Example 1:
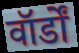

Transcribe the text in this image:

वॉर्डों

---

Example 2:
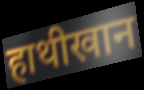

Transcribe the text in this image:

हाथीखान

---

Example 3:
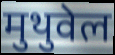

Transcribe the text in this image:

मुथुवेल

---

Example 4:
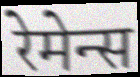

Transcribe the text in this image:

रेमेन्स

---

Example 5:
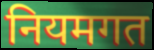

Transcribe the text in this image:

नियमगत